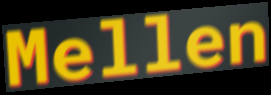
Mellen